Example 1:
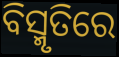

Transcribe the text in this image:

ବିସ୍ମୃତିରେ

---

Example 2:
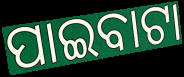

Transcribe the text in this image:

ପାଇବାଟା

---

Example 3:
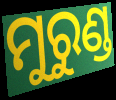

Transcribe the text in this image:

ମୁରୁଣ୍ଡ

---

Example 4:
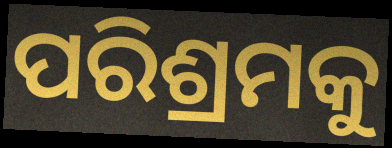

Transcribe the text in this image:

ପରିଶ୍ରମକୁ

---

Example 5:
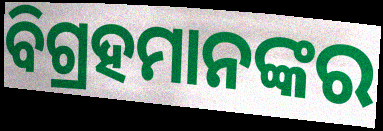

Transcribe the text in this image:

ବିଗ୍ରହମାନଙ୍କର